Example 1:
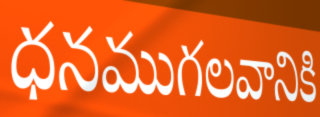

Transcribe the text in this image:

ధనముగలవానికి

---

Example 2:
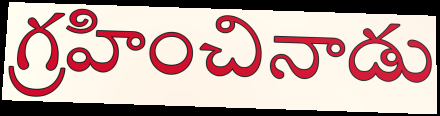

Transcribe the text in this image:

గ్రహించినాడు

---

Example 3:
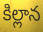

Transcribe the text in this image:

కిల్లాన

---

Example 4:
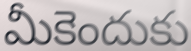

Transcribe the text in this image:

మీకెందుకు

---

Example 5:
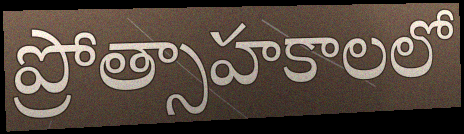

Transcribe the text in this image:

ప్రోత్సాహకాలలో